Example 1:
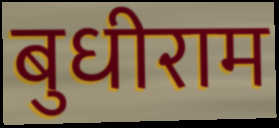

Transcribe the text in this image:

बुधीराम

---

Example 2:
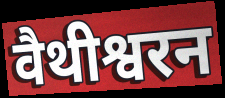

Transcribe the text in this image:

वैथीश्वरन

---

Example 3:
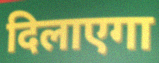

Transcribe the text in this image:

दिलाएगा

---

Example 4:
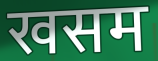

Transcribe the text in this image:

खसम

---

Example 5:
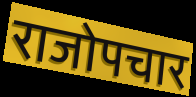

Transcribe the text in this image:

राजोपचार